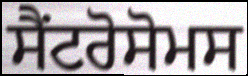
ਸੈਂਟਰੋਸੋਮਸ